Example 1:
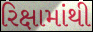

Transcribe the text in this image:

રિક્ષામાંથી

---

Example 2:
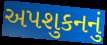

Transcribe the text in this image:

અપશુકનનું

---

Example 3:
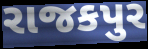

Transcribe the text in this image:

રાજકપુર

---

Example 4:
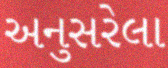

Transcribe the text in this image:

અનુસરેલા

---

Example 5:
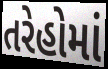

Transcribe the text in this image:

તરેહોમાં